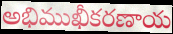
అభిముఖీకరణాయ